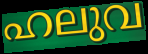
ഹലുവ